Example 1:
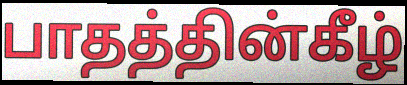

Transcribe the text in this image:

பாதத்தின்கீழ்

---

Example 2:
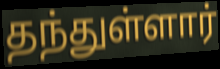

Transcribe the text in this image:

தந்துள்ளார்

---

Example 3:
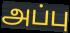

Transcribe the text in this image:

அப்பு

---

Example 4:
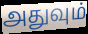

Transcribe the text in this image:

அதுவும்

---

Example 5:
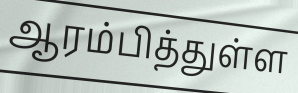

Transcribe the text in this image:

ஆரம்பித்துள்ள